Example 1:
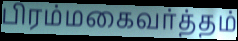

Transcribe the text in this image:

பிரம்மகைவர்த்தம்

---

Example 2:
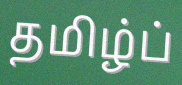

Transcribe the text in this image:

தமிழ்ப்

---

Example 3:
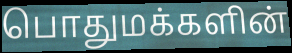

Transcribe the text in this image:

பொதுமக்களின்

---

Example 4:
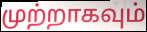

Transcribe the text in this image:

முற்றாகவும்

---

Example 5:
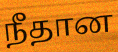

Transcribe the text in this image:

நீதான